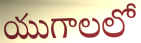
యుగాలలో